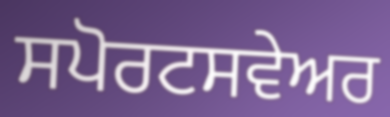
ਸਪੋਰਟਸਵੇਅਰ